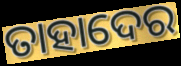
ତାହାଦେର